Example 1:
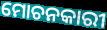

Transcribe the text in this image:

ମୋଚନକାରୀ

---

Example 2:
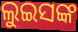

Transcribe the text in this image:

ଲୁଇସଙ୍କ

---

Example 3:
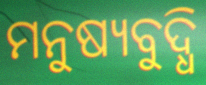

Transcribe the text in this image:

ମନୁଷ୍ୟବୁଦ୍ଧି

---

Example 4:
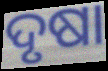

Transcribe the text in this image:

ଦୃଷା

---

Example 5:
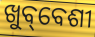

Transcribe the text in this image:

ଖୁବ୍‌ବେଶୀ